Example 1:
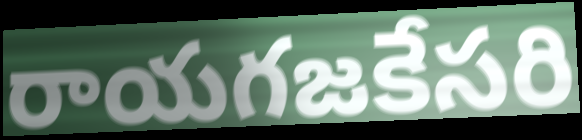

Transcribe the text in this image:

రాయగజకేసరి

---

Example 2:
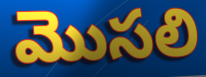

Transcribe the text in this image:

మొసలి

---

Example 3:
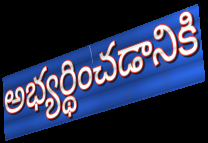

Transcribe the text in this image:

అభ్యర్థించడానికి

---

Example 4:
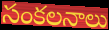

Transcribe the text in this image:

సంకలనాలు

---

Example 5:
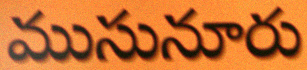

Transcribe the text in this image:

ముసునూరు